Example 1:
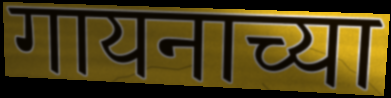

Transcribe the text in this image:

गायनाच्या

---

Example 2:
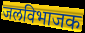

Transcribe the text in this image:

जलविभाजक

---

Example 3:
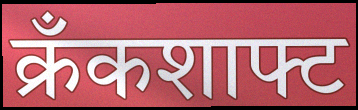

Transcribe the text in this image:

क्रँकशाफ्ट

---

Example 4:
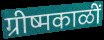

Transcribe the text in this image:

ग्रीष्मकाळीं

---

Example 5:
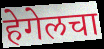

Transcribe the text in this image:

हेगेलचा